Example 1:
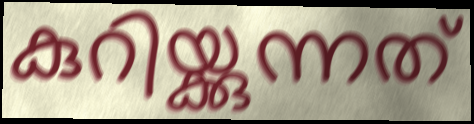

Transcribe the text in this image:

കുറിയ്ക്കുന്നത്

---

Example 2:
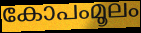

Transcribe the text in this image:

കോപംമൂലം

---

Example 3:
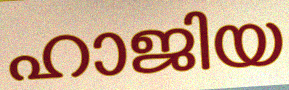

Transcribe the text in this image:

ഹാജിയ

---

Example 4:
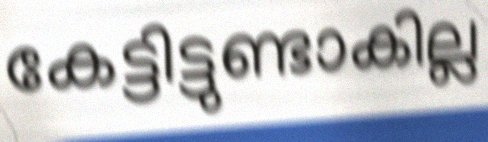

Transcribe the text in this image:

കേട്ടിട്ടുണ്ടാകില്ല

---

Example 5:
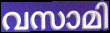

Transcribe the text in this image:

വസാമി